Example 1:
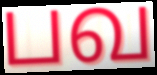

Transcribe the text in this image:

பவ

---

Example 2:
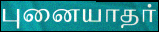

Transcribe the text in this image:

புனையாதர்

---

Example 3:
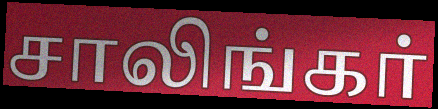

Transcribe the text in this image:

சாலிங்கர்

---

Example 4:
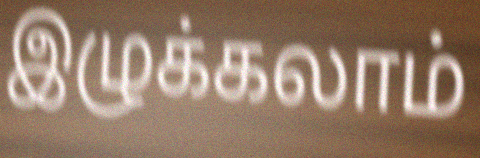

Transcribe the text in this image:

இழுக்கலாம்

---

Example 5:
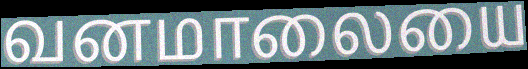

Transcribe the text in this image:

வனமாலையை